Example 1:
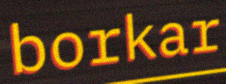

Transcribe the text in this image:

borkar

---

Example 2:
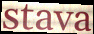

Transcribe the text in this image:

stava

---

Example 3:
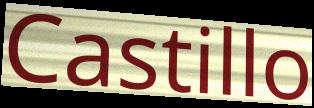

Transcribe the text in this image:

Castillo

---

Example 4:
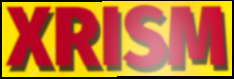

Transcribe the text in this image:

XRISM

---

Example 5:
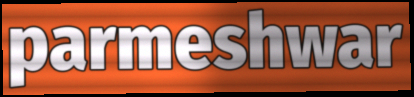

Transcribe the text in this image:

parmeshwar